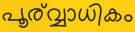
പൂര്വ്വാധികം